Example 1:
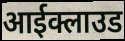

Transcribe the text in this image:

आईक्लाउड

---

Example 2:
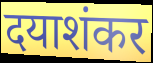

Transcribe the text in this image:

दयाशंकर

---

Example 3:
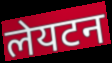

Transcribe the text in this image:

लेयटन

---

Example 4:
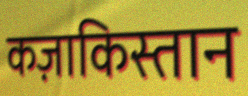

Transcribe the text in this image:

कज़ाकिस्तान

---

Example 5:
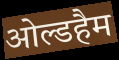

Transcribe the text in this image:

ओल्डहैम